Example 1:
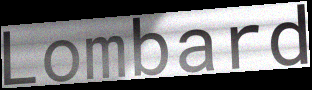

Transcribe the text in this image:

Lombard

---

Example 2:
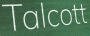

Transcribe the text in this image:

Talcott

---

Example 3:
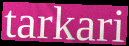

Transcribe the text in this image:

tarkari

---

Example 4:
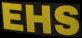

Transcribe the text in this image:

EHS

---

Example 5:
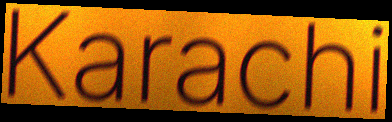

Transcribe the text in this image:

Karachi